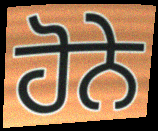
ਹੋਨੇ